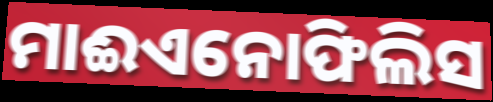
ମାଈଏନୋଫିଲିସ